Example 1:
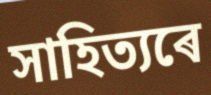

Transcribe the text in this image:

সাহিত্যৰে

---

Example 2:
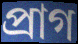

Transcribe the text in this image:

প্ৰাগ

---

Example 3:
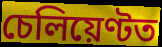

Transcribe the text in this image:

চেলিয়েণ্টত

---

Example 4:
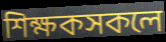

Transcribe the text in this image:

শিক্ষকসকলে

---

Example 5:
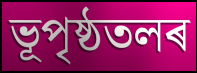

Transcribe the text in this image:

ভূপৃষ্ঠতলৰ